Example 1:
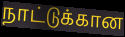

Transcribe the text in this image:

நாட்டுக்கான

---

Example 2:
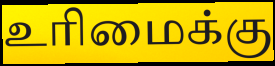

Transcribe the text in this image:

உரிமைக்கு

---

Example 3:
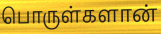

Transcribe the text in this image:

பொருள்களான்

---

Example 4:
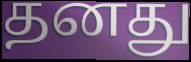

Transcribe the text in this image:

தனது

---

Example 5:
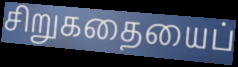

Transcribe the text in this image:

சிறுகதையைப்